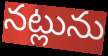
నట్లును